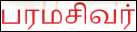
பரமசிவர்